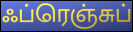
ஃப்ரெஞ்சுப்